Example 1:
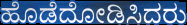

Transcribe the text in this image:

ಹೊಡೆದೋಡಿಸಿದರು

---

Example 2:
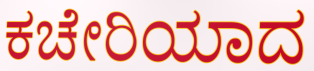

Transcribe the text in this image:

ಕಚೇರಿಯಾದ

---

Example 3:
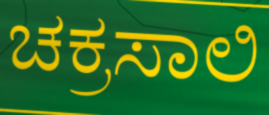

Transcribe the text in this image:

ಚಕ್ರಸಾಲಿ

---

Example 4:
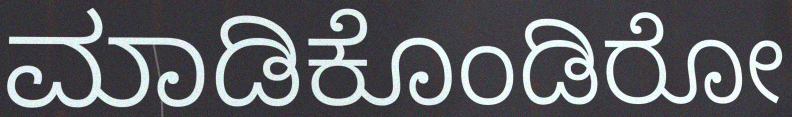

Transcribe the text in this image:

ಮಾಡಿಕೊಂಡಿರೋ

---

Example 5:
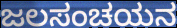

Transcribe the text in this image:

ಜಲಸಂಚಯನ